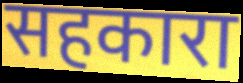
सहकारा